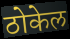
ठोकेल